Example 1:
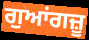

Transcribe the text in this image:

ਗੁਆਂਗਜ਼ੂ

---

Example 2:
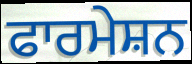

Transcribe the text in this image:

ਫਾਰਮੇਸ਼ਨ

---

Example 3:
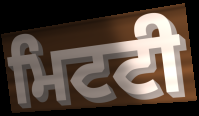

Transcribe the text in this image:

ਮਿਟਟੀ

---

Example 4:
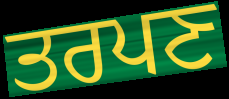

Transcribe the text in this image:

ਤਰਪਣ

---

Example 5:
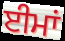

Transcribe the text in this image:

ਈਮਾਂ